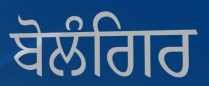
ਬੋਲੰਗਿਰ